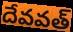
దేవవత్